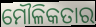
ମୌଳିକତାର